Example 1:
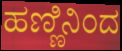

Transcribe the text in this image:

ಹಣ್ಣಿನಿಂದ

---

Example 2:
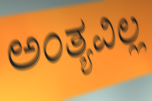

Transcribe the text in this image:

ಅಂತ್ಯವಿಲ್ಲ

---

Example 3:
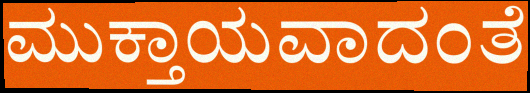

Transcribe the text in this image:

ಮುಕ್ತಾಯವಾದಂತೆ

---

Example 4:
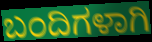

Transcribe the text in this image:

ಬಂದಿಗಳಾಗಿ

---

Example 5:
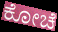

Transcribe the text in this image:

ಕೋಚೆ